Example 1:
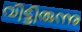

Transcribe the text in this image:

വിട്ടിരുന്നു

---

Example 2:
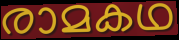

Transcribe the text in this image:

രാമകഥ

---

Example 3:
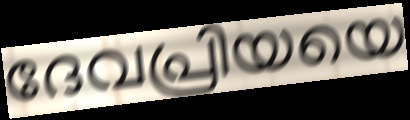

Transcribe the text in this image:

ദേവപ്രിയയെ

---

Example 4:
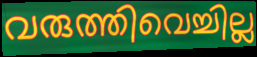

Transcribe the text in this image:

വരുത്തിവെച്ചില്ല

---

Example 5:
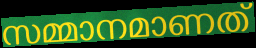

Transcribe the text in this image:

സമ്മാനമാണത്